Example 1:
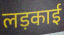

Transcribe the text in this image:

लड़काई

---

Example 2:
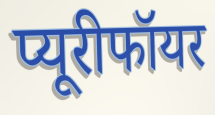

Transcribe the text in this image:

प्यूरीफॉयर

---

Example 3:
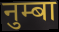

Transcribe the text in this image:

नुम्बा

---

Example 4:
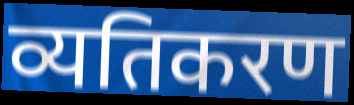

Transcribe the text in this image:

व्यतिकरण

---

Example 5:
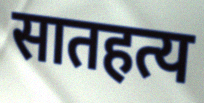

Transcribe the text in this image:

सातहत्य